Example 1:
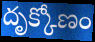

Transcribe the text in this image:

దృక్కోణం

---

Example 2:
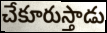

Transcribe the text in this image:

చేకూరుస్తాడు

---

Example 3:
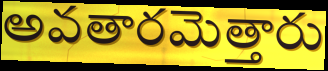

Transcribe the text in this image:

అవతారమెత్తారు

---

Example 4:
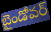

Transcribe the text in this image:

బైండోవర్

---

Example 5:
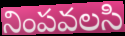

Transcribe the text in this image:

నింపవలసి